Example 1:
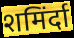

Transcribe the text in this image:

शमिंर्दा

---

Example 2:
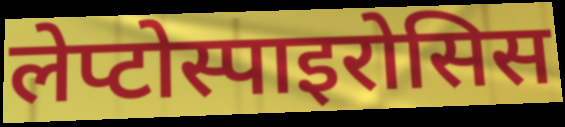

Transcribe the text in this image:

लेप्टोस्पाइरोसिस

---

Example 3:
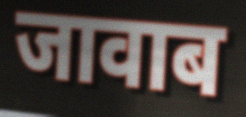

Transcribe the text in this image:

जावाब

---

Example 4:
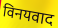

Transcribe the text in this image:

विनयवाद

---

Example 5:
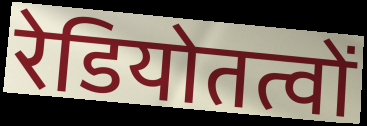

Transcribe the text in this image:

रेडियोतत्वों